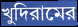
খুদিরামের